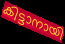
കിട്ടാനായി